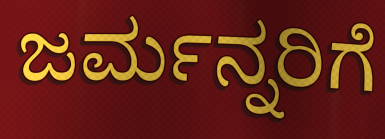
ಜರ್ಮನ್ನರಿಗೆ